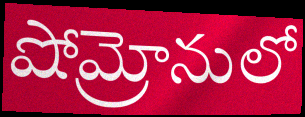
షోమ్రోనులో